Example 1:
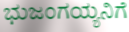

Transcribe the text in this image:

ಭುಜಂಗಯ್ಯನಿಗೆ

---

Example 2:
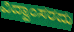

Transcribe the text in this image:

ವಿದ್ವಾಂಸರದು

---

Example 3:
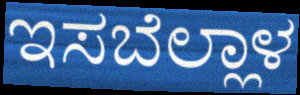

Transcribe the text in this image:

ಇಸಬೆಲ್ಲಾಳ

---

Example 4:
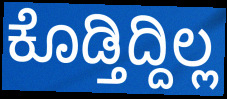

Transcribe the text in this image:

ಕೊಡ್ತಿದ್ದಿಲ್ಲ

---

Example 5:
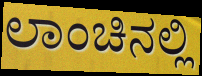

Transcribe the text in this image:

ಲಾಂಚಿನಲ್ಲಿ